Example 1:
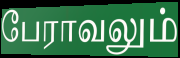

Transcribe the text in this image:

பேராவலும்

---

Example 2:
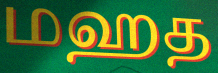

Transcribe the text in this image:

மஹத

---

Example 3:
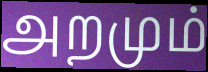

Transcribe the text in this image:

அறமும்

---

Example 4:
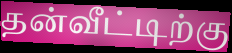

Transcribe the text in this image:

தன்வீட்டிற்கு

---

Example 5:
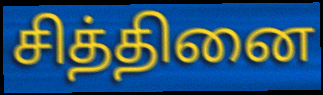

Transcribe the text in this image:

சித்தினை